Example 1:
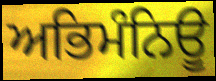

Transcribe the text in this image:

ਅਭਿਮੰਨਿਊ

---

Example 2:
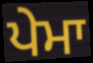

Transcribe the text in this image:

ਪੇਮਾ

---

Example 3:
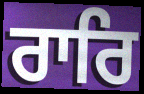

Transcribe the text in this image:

ਰਾਰਿ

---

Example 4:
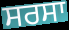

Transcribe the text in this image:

ਸਰਸਾ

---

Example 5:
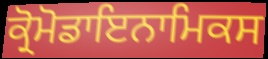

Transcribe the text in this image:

ਕ੍ਰੋਮੋਡਾਇਨਾਮਿਕਸ